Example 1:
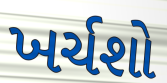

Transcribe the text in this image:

ખર્ચશો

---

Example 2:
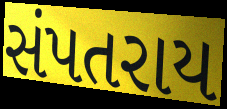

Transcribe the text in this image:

સંપતરાય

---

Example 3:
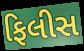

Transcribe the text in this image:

ફિલીસ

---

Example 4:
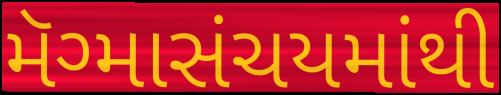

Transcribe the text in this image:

મૅગ્માસંચયમાંથી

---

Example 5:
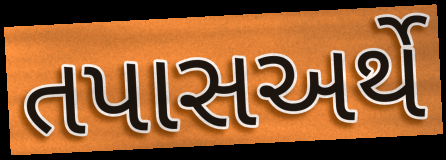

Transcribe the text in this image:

તપાસઅર્થે